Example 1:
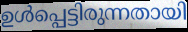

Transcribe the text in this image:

ഉൾപ്പെട്ടിരുന്നതായി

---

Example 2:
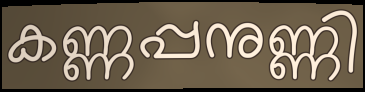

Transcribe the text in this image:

കണ്ണപ്പനുണ്ണി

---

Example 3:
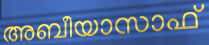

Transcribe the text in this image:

അബീയാസാഫ്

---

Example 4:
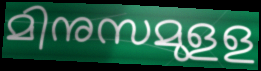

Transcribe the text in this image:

മിനുസമുളള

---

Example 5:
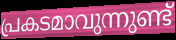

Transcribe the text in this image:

പ്രകടമാവുന്നുണ്ട്